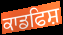
ਕਾਡਫਿਸ਼